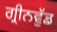
ਗ੍ਰੀਨਵੁੱਡ